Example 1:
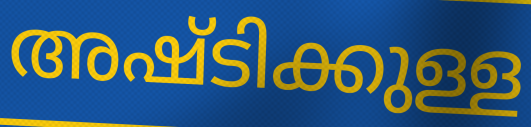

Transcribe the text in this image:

അഷ്ടിക്കുള്ള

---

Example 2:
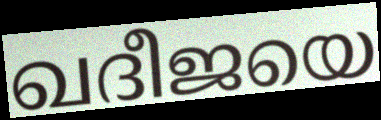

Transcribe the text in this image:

ഖദീജയെ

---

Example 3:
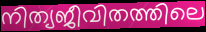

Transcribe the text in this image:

നിത്യജീവിതത്തിലെ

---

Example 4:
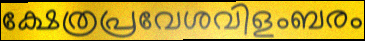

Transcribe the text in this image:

ക്ഷേത്രപ്രവേശവിളംബരം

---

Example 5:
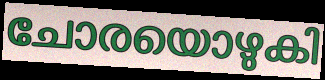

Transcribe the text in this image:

ചോരയൊഴുകി